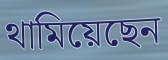
থামিয়েছেন